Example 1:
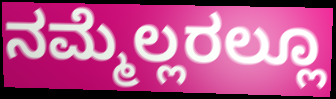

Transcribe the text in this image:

ನಮ್ಮೆಲ್ಲರಲ್ಲೂ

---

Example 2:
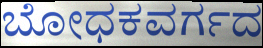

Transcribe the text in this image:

ಬೋಧಕವರ್ಗದ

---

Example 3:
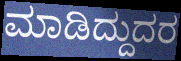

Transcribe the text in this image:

ಮಾಡಿದ್ದುದರ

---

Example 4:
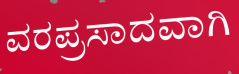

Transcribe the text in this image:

ವರಪ್ರಸಾದವಾಗಿ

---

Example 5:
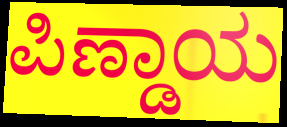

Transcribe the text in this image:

ಪಿಣ್ಡಾಯ